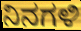
ನಿನಗಳಿ